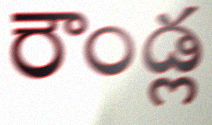
రౌండ్ల